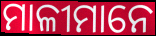
ମାଳୀମାନେ